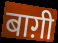
बाग़ी